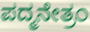
ಪದ್ಮನೇತ್ರಂ